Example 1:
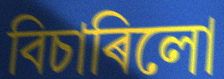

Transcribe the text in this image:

বিচাৰিলো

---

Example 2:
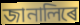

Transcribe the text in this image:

জানালিৰে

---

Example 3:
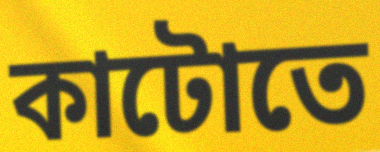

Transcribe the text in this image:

কাটোতে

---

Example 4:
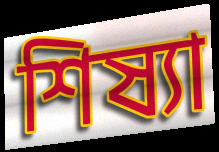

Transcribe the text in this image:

শিষ্যা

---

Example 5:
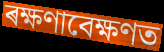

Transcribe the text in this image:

ৰক্ষণাবেক্ষণত